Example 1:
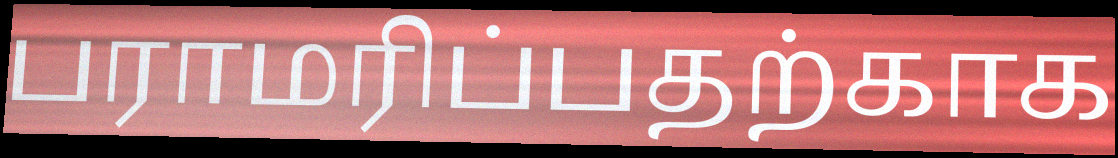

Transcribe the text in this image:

பராமரிப்பதற்காக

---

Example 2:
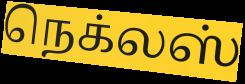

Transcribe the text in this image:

நெக்லஸ்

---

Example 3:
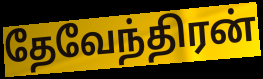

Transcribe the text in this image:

தேவேந்திரன்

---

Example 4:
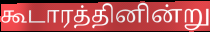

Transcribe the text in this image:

கூடாரத்தினின்று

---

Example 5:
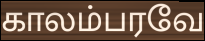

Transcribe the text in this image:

காலம்பரவே